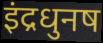
इंद्रधुनष